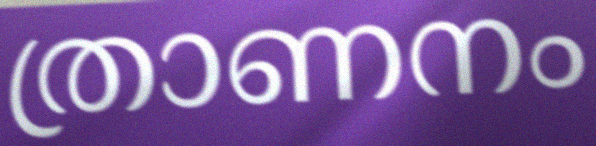
ത്രാണനം